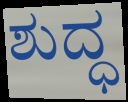
ಶುದ್ಧ